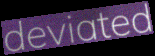
deviated